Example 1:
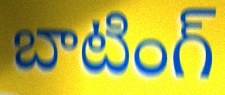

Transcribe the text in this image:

బాటింగ్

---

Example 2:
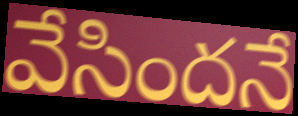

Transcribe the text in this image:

వేసిందనే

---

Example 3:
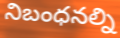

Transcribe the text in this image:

నిబంధనల్ని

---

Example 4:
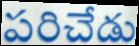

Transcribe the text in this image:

పరిచేడు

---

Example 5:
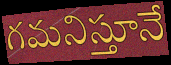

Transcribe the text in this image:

గమనిస్తూనే